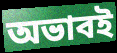
অভাবই